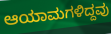
ಆಯಾಮಗಳಿದ್ದವು